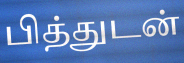
பித்துடன்